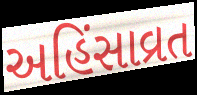
અહિંસાવ્રત